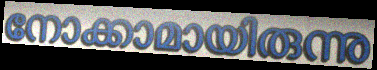
നോക്കാമായിരുന്നു